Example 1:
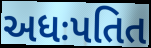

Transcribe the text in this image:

અધઃપતિત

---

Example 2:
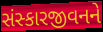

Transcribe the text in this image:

સંસ્કારજીવનને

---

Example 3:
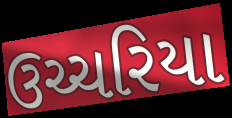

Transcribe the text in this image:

ઉચ્ચરિયા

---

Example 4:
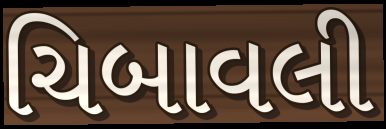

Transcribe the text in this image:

ચિબાવલી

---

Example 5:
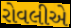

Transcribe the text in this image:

રોવલીએ